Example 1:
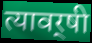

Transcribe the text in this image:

त्यावर्षी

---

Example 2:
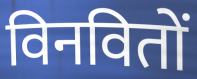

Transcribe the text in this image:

विनवितों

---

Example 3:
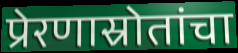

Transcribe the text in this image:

प्रेरणास्रोतांचा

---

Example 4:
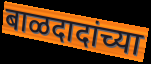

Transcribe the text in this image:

बाळदादांच्या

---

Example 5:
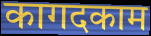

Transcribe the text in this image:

कागदकाम